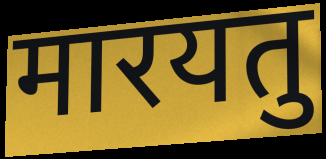
मारयतु